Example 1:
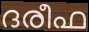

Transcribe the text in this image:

ദരീഫ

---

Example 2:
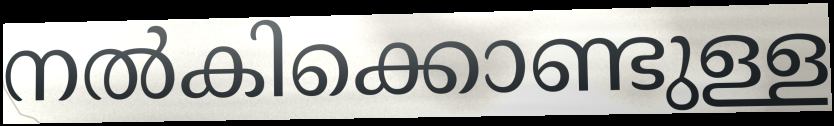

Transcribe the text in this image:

നൽകിക്കൊണ്ടുള്ള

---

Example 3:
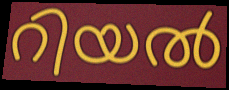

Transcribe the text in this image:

റിയൽ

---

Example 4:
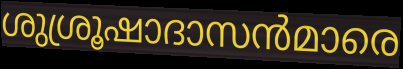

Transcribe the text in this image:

ശുശ്രൂഷാദാസൻമാരെ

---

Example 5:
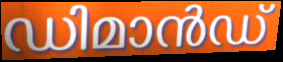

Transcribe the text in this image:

ഡിമാൻഡ്